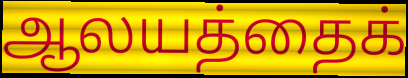
ஆலயத்தைக்